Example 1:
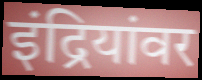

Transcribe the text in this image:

इंद्रियांवर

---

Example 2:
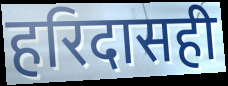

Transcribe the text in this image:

हरिदासही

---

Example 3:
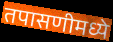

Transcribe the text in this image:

तपासणीमध्ये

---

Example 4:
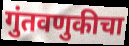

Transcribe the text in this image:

गुंतवणुकीचा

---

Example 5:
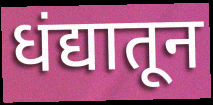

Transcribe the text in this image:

धंद्यातून